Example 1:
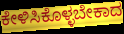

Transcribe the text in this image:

ಕೇಳಿಸಿಕೊಳ್ಳಬೇಕಾದ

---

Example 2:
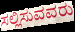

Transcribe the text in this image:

ಸಲ್ಲಿಸುವವರು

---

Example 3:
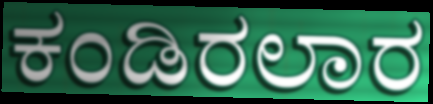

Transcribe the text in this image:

ಕಂಡಿರಲಾರ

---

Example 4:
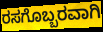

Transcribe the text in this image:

ರಸಗೊಬ್ಬರವಾಗಿ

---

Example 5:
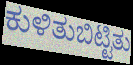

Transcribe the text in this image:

ಕುಳಿತುಬಿಟ್ಟಿತು